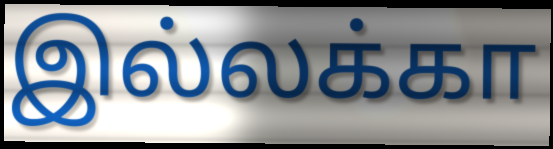
இல்லக்கா